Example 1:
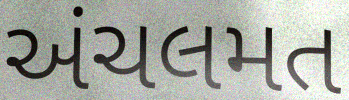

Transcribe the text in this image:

અંચલમત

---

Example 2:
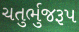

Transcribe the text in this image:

ચતુર્ભુજરૂપ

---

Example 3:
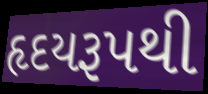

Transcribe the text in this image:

હૃદયરૂપથી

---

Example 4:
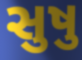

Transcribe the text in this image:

સુષુ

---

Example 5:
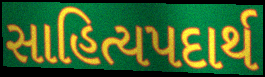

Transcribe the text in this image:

સાહિત્યપદાર્થ